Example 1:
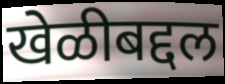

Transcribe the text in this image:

खेळीबद्दल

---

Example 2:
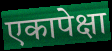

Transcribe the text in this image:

एकापेक्षा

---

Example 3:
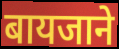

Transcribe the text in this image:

बायजाने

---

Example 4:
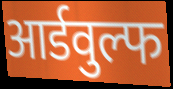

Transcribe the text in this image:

आर्डवुल्फ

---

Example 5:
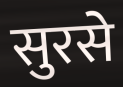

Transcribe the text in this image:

सुरसे